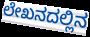
ಲೇಖನದಲ್ಲಿನ